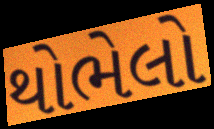
થોભેલો